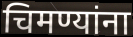
चिमण्यांना